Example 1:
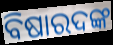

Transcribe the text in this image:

ବିଷାରଦଙ୍କ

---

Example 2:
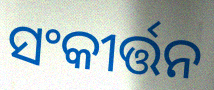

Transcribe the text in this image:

ସଂକୀର୍ତ୍ତନ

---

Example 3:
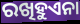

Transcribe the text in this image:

ରଖିହୁଏନା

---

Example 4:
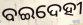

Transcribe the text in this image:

ବଇଦେହୀ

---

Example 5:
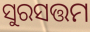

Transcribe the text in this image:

ସୁରସତ୍ତମ